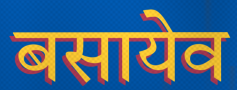
बसायेव